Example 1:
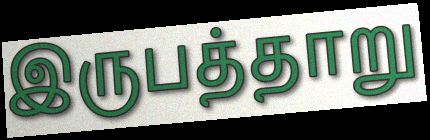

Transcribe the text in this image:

இருபத்தாறு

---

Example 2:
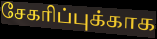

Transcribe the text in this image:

சேகரிப்புக்காக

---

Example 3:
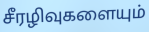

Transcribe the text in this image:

சீரழிவுகளையும்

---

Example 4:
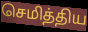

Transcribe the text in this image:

செமித்திய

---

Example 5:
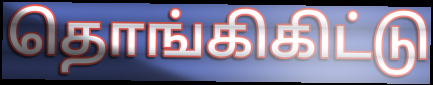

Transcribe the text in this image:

தொங்கிகிட்டு